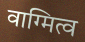
वाग्मित्व